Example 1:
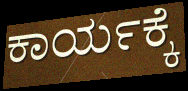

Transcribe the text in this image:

ಕಾರ್ಯಕ್ಕೆ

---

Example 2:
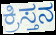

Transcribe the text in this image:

ಕ್ರಿಸ್ತನ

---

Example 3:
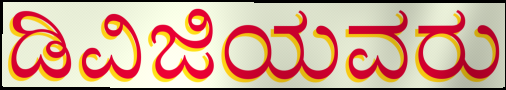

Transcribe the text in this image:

ಡಿವಿಜಿಯವರು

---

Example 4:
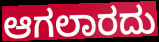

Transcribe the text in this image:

ಆಗಲಾರದು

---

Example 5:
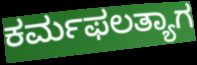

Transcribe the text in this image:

ಕರ್ಮಫಲತ್ಯಾಗ